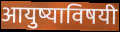
आयुष्याविषयी